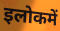
इलोकमें